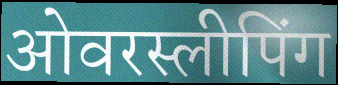
ओवरस्लीपिंग